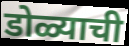
डोळ्याची